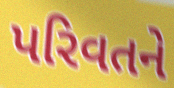
પરિવતને